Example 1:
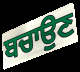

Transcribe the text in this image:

ਬਚਾਉਣ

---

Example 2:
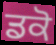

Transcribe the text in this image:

ਡਕੋ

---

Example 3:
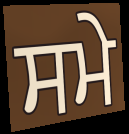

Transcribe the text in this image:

ਸਮੇ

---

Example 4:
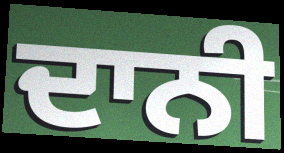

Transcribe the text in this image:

ਦਾਨੀ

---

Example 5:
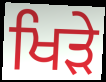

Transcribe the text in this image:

ਖਿੜੇ